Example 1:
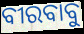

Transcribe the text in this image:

ବୀରବାବୁ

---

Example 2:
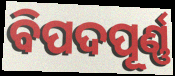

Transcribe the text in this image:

ବିପଦପୂର୍ଣ୍ଣ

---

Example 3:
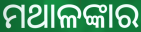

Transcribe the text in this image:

ମଥାଳଙ୍କାର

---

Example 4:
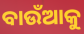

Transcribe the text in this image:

ବାଉଁଆକୁ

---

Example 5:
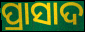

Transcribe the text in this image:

ପ୍ରାସାଦ